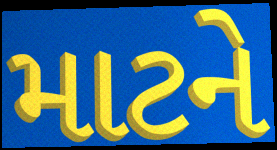
માટને